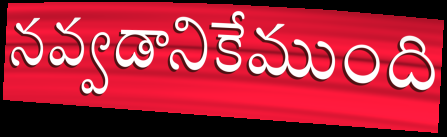
నవ్వడానికేముంది